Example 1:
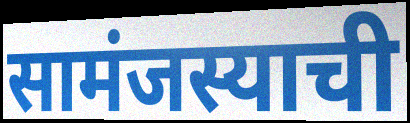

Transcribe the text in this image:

सामंजस्याची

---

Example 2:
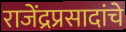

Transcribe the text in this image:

राजेंद्रप्रसादांचे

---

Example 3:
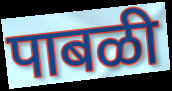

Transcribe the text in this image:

पाबळी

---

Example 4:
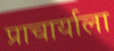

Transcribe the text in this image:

प्राचार्याला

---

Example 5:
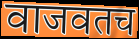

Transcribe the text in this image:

वाजवतच